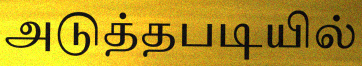
அடுத்தபடியில்